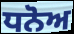
ਧਨੋਅ